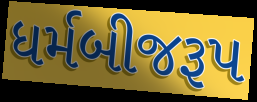
ધર્મબીજરૂપ